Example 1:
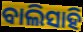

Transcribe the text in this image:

ବାଲିସାହି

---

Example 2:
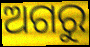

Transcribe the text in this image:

ଅଗରୁ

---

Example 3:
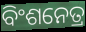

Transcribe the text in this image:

ବିଂଶନେତ୍ର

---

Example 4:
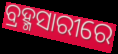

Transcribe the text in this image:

ବ୍ରହ୍ମସାରୀରେ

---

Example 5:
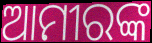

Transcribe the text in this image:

ଆମୀରଙ୍କ